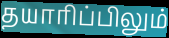
தயாரிப்பிலும்